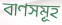
বাণসমূহ